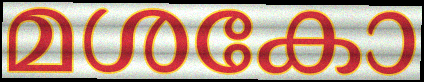
മശകോ